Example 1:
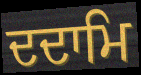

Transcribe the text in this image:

ਦਦਾਮਿ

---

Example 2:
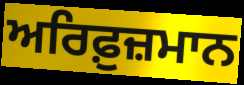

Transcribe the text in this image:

ਅਰਿਫ਼ੁਜ਼ਮਾਨ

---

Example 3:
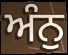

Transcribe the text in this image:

ਅੰਨੁ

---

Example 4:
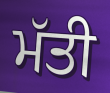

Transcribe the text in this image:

ਮੱਤੀ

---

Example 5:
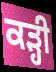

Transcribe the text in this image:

ਕੜ੍ਹੀ